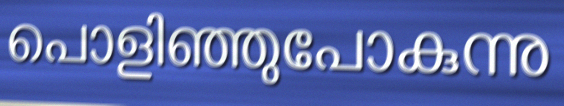
പൊളിഞ്ഞുപോകുന്നു